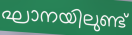
ഘാനയിലുണ്ട്